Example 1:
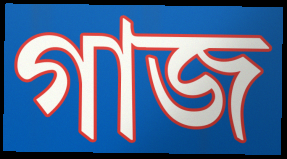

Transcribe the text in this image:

গাজ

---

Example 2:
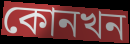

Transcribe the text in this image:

কোনখন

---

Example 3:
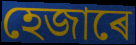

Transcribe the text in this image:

হেজাৰে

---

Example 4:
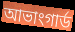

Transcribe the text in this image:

আভাংগাৰ্ড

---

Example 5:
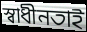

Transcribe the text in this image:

স্বাধীনতাই